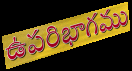
ఉపరిభాగము